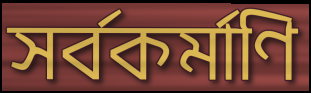
সর্বকর্মাণি